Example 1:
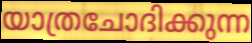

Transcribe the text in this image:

യാത്രചോദിക്കുന്ന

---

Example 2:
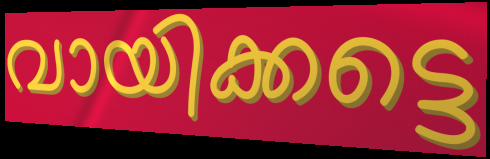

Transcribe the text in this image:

വായിക്കട്ടെ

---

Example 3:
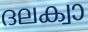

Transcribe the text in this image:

ദലക്വാ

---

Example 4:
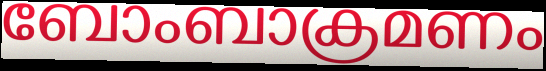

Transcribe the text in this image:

ബോംബാക്രമണം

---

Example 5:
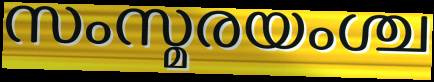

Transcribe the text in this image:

സംസ്മരയംശ്ച